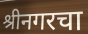
श्रीनगरचा